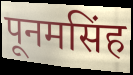
पूनमसिंह